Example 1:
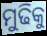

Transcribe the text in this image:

ମୁଢିକୁ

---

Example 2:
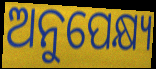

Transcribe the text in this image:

ଅନୁପେକ୍ଷ୍ୟ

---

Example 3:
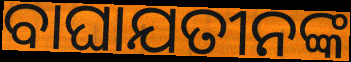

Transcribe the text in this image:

ବାଘାଯତୀନଙ୍କ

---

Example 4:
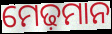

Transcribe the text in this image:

ମେଢ଼ମାନ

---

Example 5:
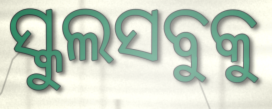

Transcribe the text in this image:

ସ୍କୁଲସବୁକୁ